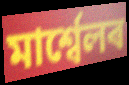
মাৰ্শ্বেলৰ